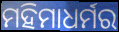
ମହିମାଧର୍ମର